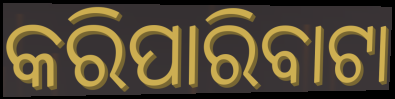
କରିପାରିବାଟା